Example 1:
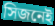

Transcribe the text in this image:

সিজনেই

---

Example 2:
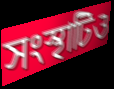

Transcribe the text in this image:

সংস্থাটিও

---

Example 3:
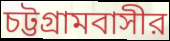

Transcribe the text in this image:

চট্টগ্রামবাসীর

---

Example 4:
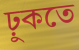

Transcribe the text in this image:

ঢ়ুকতে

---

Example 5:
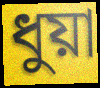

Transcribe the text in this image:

ধুয়া